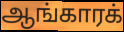
ஆங்காரக்